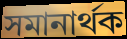
সমানার্থক